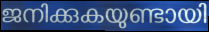
ജനിക്കുകയുണ്ടായി